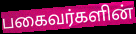
பகைவர்களின்